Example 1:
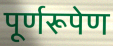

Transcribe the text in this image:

पूर्णरूपेण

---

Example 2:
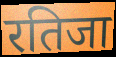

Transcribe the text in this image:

रतिजा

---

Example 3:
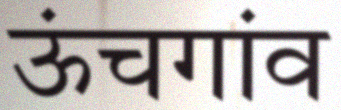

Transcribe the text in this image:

ऊंचगांव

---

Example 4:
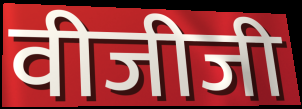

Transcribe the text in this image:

वीजीजी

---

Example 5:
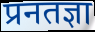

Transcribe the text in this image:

प्रनतज्ञा